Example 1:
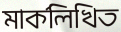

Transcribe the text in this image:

মার্কলিখিত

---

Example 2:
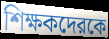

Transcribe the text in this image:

শিক্ষকদেরকে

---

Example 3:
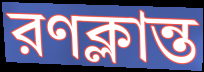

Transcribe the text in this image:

রণক্লান্ত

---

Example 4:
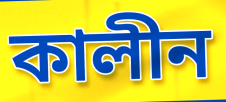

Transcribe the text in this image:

কালীন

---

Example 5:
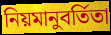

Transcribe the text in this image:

নিয়মানুবর্তিতা